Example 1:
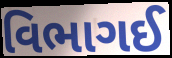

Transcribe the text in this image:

વિભાગઈ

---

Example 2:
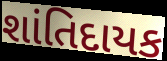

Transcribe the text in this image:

શાંતિદાયક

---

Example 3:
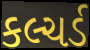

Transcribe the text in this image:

કલ્ચર્ડ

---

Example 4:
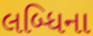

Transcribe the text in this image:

લબ્ધિના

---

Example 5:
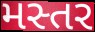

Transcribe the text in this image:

મસ્તર